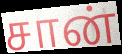
சான்